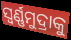
ସ୍ଵର୍ଣ୍ଣମୁଦ୍ରାକୁ